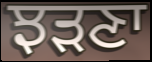
ਝੜਣਾ